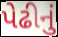
પેઢીનું